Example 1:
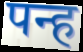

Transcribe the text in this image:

पन्ह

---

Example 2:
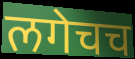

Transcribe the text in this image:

लगेचच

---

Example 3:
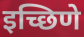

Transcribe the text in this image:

इच्छिणे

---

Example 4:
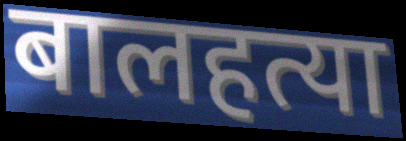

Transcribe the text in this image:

बालहत्या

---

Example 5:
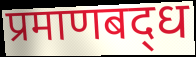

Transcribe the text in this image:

प्रमाणबद्ध